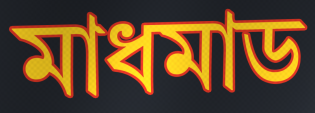
মাধমাড